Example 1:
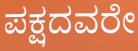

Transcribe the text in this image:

ಪಕ್ಷದವರೇ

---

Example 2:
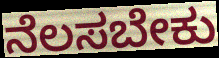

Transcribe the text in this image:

ನೆಲಸಬೇಕು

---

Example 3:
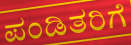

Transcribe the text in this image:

ಪಂಡಿತರಿಗೆ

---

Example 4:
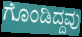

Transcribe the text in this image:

ಗೊಂಡಿದ್ದವು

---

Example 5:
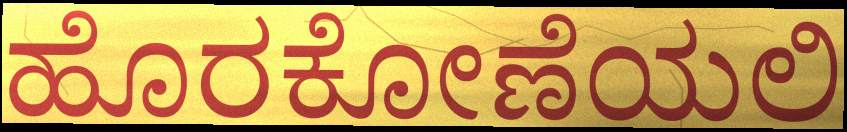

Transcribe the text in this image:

ಹೊರಕೋಣೆಯಲಿ